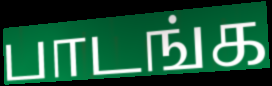
பாடங்க